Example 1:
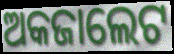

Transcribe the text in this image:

ଅକଜାଲେଟ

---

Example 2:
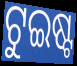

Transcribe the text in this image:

ଟୁଇଷ୍ଟ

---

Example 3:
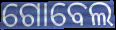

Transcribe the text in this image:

ଗୋବେଲ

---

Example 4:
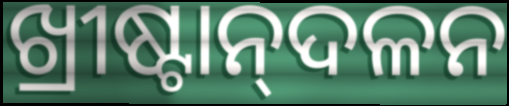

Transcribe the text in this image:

ଖ୍ରୀଷ୍ଟାନ୍‌ଦଳନ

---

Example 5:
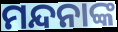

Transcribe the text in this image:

ମନ୍ଦନାଙ୍କ